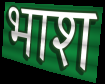
भाश